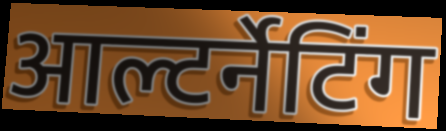
आल्टर्नेटिंग